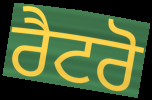
ਰੈਟਰੋ